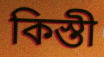
কিস্তী